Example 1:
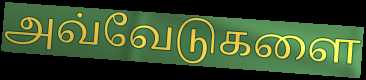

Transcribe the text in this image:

அவ்வேடுகளை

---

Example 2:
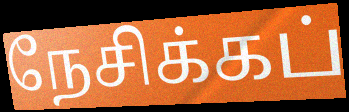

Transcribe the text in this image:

நேசிக்கப்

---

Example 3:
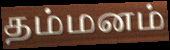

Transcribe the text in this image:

தம்மனம்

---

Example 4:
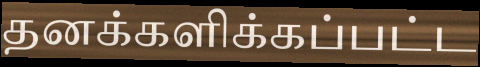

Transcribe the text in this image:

தனக்களிக்கப்பட்ட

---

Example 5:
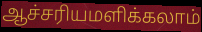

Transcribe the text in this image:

ஆச்சரியமளிக்கலாம்